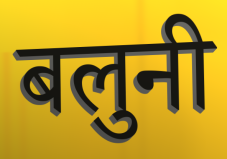
बलुनी